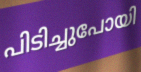
പിടിച്ചുപോയി